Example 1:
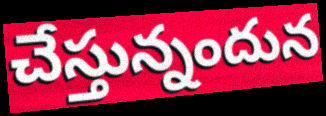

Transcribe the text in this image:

చేస్తున్నందున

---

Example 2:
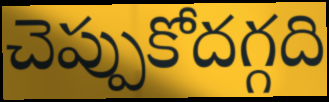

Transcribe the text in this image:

చెప్పుకోదగ్గది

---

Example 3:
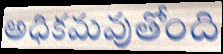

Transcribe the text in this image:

అధికమవుతోంది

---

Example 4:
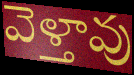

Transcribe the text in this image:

వెళ్తావు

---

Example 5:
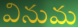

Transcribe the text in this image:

వినుమ